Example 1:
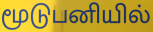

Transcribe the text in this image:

மூடுபனியில்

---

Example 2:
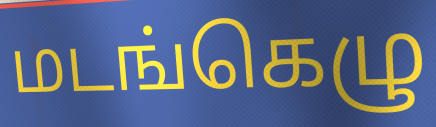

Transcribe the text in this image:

மடங்கெழு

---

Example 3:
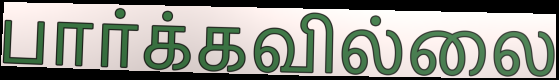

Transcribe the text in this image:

பார்க்கவில்லை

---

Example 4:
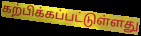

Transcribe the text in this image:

கற்பிக்கப்பட்டுள்ளது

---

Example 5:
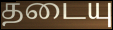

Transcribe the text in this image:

தடையு